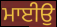
ਮਾਈਉ